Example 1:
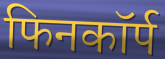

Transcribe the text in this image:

फिनकॉर्प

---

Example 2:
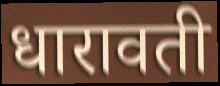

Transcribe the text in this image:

धारावती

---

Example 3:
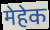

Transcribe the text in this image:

मेहेक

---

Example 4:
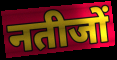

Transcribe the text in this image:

नतीजों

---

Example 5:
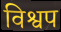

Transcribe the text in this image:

विश्वप